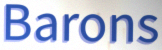
Barons